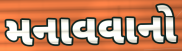
મનાવવાનો